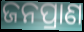
ଜନପ୍ରାଣ